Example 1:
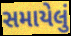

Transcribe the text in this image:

સમાયેલું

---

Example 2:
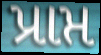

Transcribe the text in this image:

પ્રાપ્ત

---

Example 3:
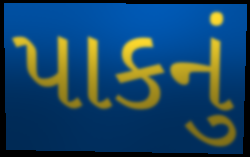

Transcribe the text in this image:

પાકનું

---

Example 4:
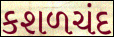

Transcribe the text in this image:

કશળચંદ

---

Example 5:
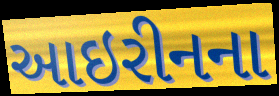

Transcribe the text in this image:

આઇરીનના